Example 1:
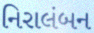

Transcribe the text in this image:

નિરાલંબન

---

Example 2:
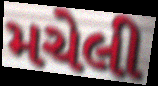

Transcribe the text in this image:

મચેલી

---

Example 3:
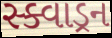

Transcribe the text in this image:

સ્ક્વાડ્રન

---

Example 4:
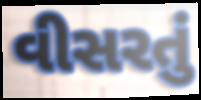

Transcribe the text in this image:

વીસરતું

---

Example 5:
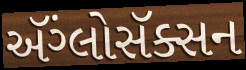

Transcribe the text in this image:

ઍંગ્લોસૅક્સન